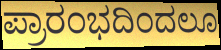
ಪ್ರಾರಂಭದಿಂದಲೂ